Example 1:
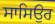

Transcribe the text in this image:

ਸਾਸਿਉਰ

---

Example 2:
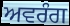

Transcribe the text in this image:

ਅਵਰੰਗ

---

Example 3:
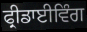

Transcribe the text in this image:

ਫ੍ਰੀਡਾਈਵਿੰਗ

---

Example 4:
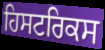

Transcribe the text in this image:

ਹਿਸਟਰਿਕਸ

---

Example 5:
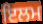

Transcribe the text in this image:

ਇਲਮ